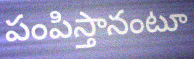
పంపిస్తానంటూ